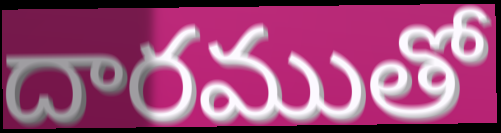
దారముతో